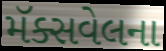
મૅક્સવેલના